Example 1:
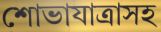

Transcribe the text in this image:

শোভাযাত্রাসহ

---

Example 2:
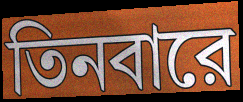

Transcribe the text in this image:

তিনবারে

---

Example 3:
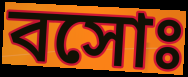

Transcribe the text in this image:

বসোঃ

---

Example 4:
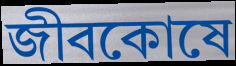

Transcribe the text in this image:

জীবকোষে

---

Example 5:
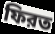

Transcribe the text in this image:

ফিরত